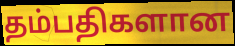
தம்பதிகளான